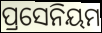
ପ୍ରସେନିୟମ